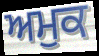
ਅਮੁਕ